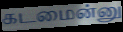
கடமைன்னு